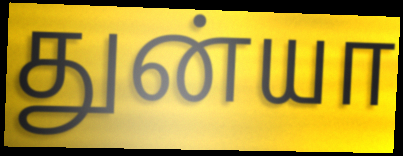
துன்யா